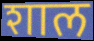
शाल